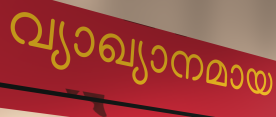
വ്യാഖ്യാനമായ